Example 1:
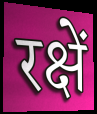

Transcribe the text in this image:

रक्षें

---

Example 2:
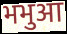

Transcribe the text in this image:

भभुआ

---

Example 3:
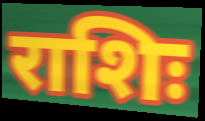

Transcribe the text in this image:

राशिः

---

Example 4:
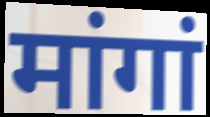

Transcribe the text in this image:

मांगां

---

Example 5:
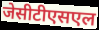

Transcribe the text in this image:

जेसीटीएसएल